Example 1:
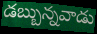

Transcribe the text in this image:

డబ్బున్నవాడు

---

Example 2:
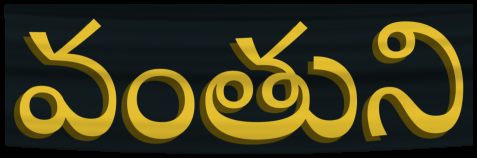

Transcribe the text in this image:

వంతుని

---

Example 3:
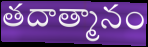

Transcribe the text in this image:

తదాత్మానం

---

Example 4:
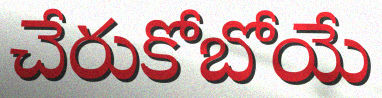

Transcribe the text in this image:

చేరుకోబోయే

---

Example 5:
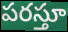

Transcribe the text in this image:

పరస్తూ